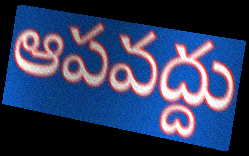
ఆపవద్దు